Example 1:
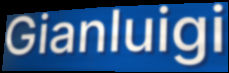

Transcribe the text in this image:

Gianluigi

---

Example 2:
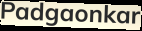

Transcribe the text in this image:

Padgaonkar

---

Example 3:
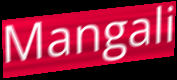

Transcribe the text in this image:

Mangali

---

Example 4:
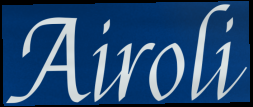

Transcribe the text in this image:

Airoli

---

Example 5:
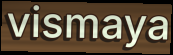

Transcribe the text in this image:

vismaya